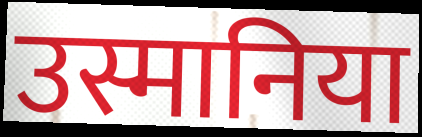
उस्मानिया